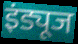
इंड्यूज